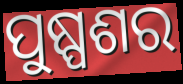
ପୁଷ୍ପଶର